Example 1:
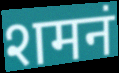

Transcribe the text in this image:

शमनं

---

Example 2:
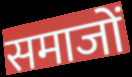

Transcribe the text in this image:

समाजों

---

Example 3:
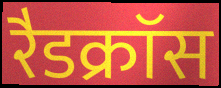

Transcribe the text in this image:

रैडक्रॉस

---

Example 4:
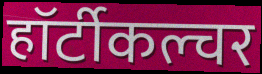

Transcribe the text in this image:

हॉर्टीकल्चर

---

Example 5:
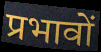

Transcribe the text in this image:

प्रभावों